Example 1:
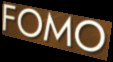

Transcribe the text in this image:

FOMO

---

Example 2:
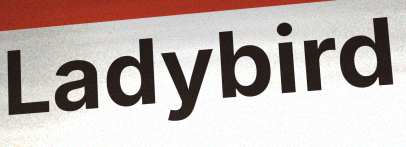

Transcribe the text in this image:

Ladybird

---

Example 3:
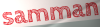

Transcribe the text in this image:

samman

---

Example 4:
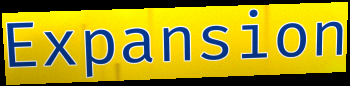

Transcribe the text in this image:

Expansion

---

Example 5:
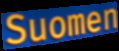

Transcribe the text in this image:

Suomen